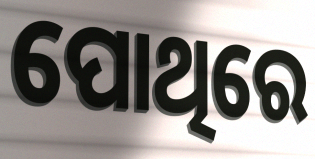
ପୋଥିରେ